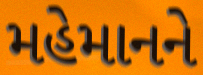
મહેમાનને